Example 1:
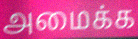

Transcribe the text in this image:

அமைக்க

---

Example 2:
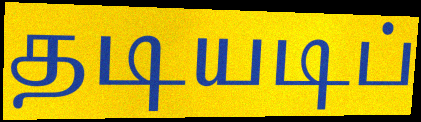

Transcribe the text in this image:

தடியடிப்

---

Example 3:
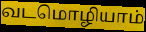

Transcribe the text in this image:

வடமொழியாம்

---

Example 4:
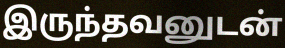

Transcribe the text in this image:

இருந்தவனுடன்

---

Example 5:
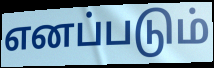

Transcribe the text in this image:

எனப்படும்